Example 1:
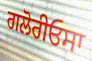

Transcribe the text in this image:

ਗਲੋਰੀਓਸਾ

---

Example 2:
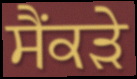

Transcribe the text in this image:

ਸੈਂਕੜੇ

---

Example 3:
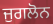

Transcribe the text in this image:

ਜੁਗਲੋਨ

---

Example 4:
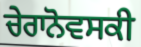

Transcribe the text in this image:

ਚੇਰਾਨੋਵਸਕੀ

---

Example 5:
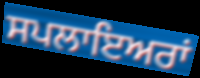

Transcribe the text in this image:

ਸਪਲਾਇਅਰਾਂ